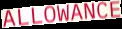
ALLOWANCE